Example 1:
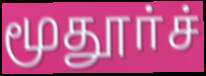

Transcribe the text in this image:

மூதூர்ச்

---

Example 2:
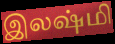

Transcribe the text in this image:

இலஷ்மி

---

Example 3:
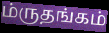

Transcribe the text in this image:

ம்ருதங்கம்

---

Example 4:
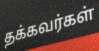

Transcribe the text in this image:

தக்கவர்கள்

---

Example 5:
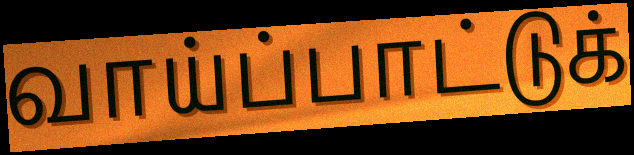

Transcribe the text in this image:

வாய்ப்பாட்டுக்